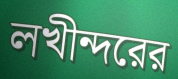
লখীন্দরের